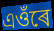
এওঁৰে